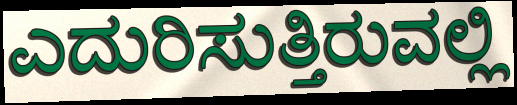
ಎದುರಿಸುತ್ತಿರುವಲ್ಲಿ